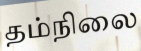
தம்நிலை